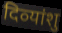
दिव्‍यांशु